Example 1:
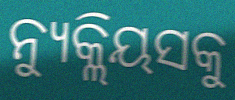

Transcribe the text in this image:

ନ୍ୟୁକ୍ଲିୟସକୁ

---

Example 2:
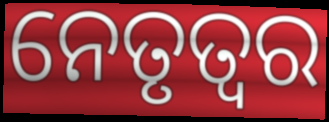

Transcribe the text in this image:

ନେତୃତ୍ୱର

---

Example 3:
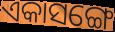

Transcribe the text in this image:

ଏକାସଙ୍ଗେ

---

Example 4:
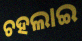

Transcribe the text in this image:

ଚହଲାଇ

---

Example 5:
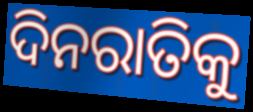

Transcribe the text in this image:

ଦିନରାତିକୁ